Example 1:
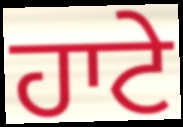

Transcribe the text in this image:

ਹਾਟੇ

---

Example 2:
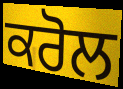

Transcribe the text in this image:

ਕਰੋਲ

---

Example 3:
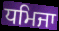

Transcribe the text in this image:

ਧਮਿਜਾ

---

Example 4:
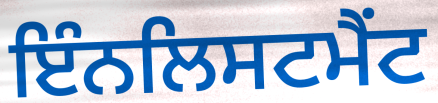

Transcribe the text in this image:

ਇੰਨਲਿਸਟਮੈਂਟ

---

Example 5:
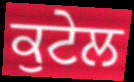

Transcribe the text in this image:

ਕੁਟੇਲ